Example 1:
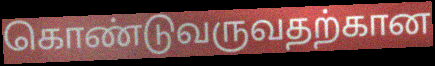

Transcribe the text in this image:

கொண்டுவருவதற்கான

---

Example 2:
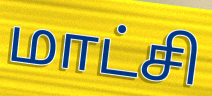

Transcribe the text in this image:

மாட்சி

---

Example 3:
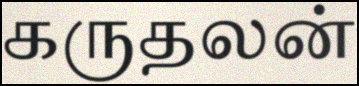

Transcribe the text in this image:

கருதலன்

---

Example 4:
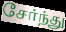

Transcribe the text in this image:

சேர்ந்து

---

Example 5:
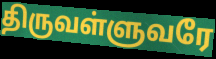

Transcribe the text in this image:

திருவள்ளுவரே